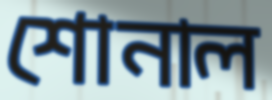
শোনাল